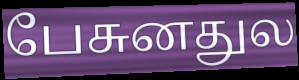
பேசுனதுல